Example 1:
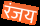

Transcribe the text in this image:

रंजय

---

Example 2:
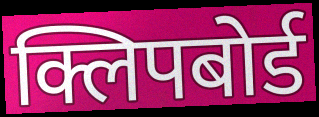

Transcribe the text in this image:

क्लिपबोर्ड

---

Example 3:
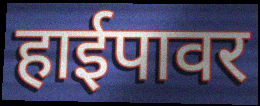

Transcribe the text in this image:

हाईपावर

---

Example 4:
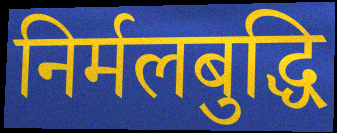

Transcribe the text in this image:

निर्मलबुद्धि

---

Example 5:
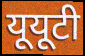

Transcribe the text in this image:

यूयूटी